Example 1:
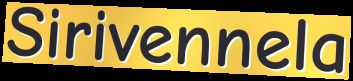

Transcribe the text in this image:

Sirivennela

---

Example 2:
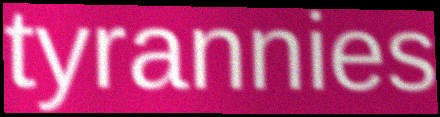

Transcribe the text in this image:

tyrannies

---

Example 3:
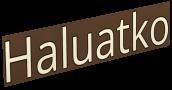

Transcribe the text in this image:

Haluatko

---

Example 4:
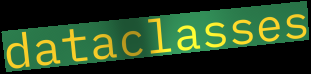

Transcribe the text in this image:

dataclasses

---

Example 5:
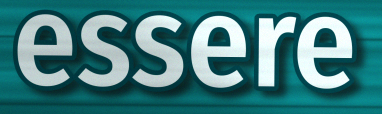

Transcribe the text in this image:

essere